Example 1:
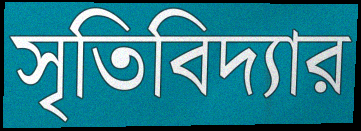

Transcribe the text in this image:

সৃতিবিদ্যার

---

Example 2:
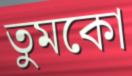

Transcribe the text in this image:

তুমকো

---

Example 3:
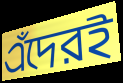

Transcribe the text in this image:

এঁদেরই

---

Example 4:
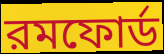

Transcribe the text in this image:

রমফোর্ড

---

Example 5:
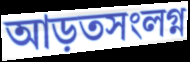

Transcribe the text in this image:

আড়তসংলগ্ন